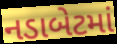
નડાબેટમાં